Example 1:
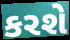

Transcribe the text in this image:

કરશે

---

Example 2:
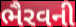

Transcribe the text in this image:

ભૈરવની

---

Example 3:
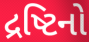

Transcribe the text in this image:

દ્રષ્ટિનો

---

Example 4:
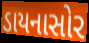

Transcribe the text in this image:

ડાયનાસોર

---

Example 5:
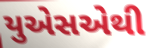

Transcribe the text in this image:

યુએસએથી